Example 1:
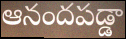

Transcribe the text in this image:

ఆనందపడ్డా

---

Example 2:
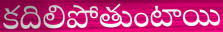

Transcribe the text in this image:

కదిలిపోతుంటాయి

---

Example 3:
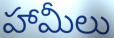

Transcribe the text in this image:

హామీలు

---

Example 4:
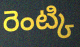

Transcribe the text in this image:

రెంట్కి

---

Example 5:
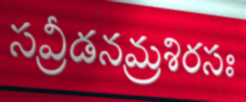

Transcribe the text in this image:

సవ్రీడనమ్రశిరసః